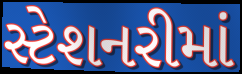
સ્ટેશનરીમાં